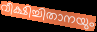
വീക്ഷിച്ചിതാനയും